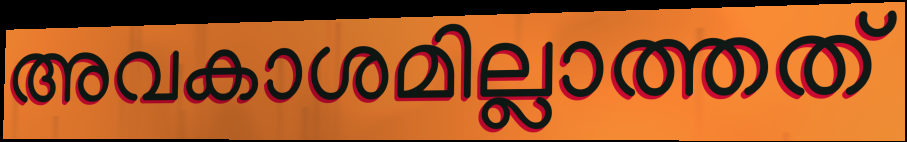
അവകാശമില്ലാത്തത്